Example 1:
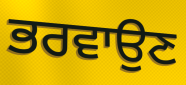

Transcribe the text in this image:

ਭਰਵਾਉਣ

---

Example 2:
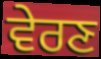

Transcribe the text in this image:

ਵੇਰਣ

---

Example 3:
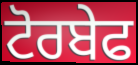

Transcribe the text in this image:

ਟੋਰਬੇਫ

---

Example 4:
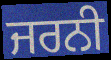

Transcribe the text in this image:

ਜਰਨੀ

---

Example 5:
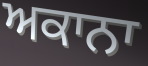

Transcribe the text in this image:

ਅਕਾਨਾ